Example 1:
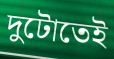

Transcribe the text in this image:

দুটোতেই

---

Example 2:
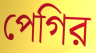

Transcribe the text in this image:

পেগির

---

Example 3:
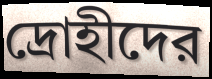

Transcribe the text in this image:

দ্রোহীদের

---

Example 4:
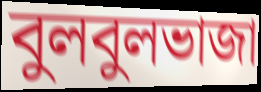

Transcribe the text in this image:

বুলবুলভাজা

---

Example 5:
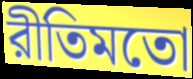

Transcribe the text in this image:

রীতিমতো